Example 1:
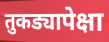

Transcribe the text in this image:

तुकड्यापेक्षा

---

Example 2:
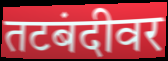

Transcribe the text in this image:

तटबंदीवर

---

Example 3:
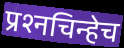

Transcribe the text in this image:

प्रश्नचिन्हेच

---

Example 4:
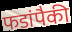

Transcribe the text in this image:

फडांपैकी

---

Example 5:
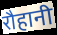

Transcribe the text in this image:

रौहानी